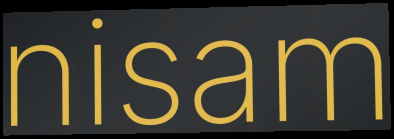
nisam